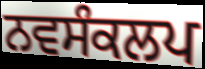
ਨਵਸੰਕਲਪ